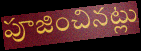
పూజించినట్లు